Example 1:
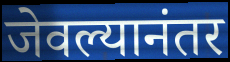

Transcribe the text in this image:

जेवल्यानंतर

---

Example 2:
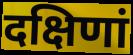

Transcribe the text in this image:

दक्षिणां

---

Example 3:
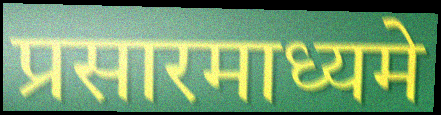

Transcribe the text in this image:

प्रसारमाध्यमे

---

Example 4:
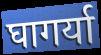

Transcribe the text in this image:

घागर्या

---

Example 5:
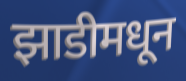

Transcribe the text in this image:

झाडीमधून